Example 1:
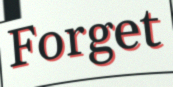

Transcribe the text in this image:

Forget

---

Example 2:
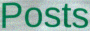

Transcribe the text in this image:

Posts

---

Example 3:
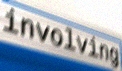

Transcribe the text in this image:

involving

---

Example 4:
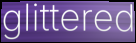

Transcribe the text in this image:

glittered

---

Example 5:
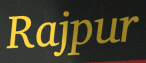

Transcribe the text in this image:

Rajpur